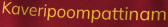
Kaveripoompattinam